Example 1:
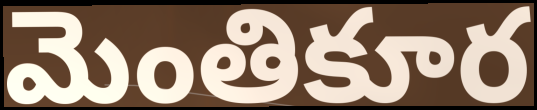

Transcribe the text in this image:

మెంతికూర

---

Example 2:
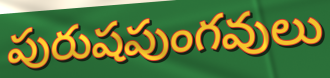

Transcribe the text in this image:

పురుషపుంగవులు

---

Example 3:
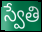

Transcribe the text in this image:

స్వేతి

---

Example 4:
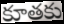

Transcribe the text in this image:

కూతకు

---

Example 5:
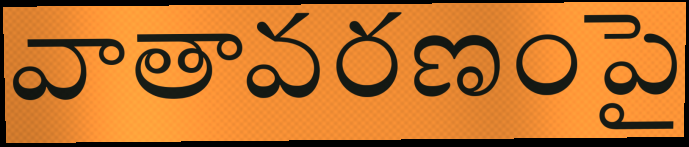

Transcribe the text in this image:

వాతావరణంపై